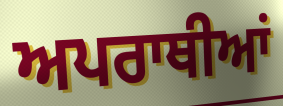
ਅਪਰਾਥੀਆਂ